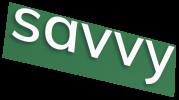
savvy